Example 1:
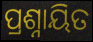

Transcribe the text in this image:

ପ୍ରଶ୍ନାୟିତ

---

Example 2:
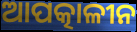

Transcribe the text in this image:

ଆପତ୍କାଳୀନ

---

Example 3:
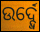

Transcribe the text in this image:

ଉର୍ଦ୍ଦ୍ୱେ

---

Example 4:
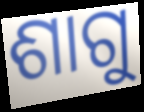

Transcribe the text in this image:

ଶାଗୁ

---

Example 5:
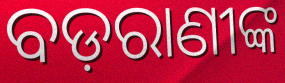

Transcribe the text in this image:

ବଡ଼ରାଣୀଙ୍କ